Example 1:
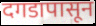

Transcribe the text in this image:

दगडापासून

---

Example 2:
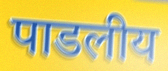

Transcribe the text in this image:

पाडलीय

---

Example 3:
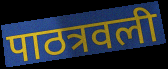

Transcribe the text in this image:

पाठत्रवली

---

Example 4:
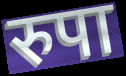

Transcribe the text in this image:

रुपा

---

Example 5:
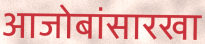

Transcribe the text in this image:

आजोबांसारखा